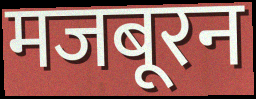
मजबूरन